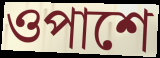
ওপাশে